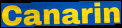
Canarin